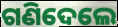
ଗଣିଦେଲେ